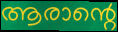
ആരാന്റെ